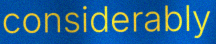
considerably